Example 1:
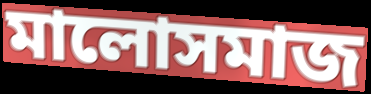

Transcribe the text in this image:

মালোসমাজ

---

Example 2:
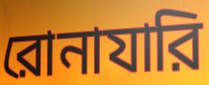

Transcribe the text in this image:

রোনাযারি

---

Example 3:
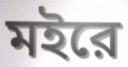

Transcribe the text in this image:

মইরে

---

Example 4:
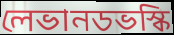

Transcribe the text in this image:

লেভানডভস্কি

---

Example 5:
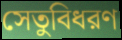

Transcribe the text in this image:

সেতুবিধরণ